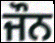
ਜੌਨ